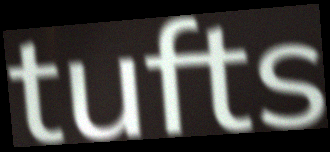
tufts